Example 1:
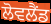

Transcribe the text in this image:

ਲੋਵਲੈਂਡ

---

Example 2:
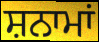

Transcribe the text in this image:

ਸ਼ਨਾਮਾਂ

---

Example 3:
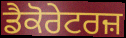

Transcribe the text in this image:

ਡੈਕੋਰੇਟਰਜ਼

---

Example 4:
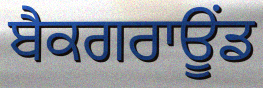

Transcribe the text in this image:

ਬੈਕਗਰਾਊਂਡ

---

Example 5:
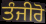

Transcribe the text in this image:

ਤੰਜੀਰੋ